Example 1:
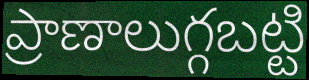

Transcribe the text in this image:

ప్రాణాలుగ్గబట్టి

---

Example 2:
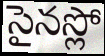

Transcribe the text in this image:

సైనస్లో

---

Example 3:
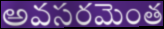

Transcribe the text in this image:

అవసరమెంత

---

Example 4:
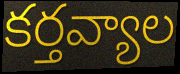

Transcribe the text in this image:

కర్తవ్యాల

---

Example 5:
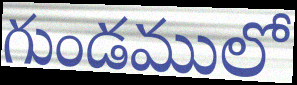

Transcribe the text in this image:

గుండములో